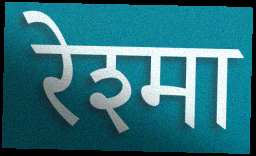
रेश्मा